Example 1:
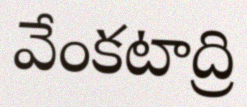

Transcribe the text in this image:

వేంకటాద్రి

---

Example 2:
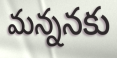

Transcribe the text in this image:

మన్ననకు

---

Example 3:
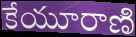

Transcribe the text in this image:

కేయూరాణి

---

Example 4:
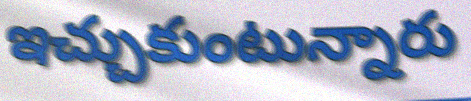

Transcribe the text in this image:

ఇచ్చుకుంటున్నారు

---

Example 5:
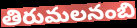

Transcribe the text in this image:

తిరుమలనంబి